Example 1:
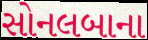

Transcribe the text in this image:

સોનલબાના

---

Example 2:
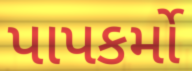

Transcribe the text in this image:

પાપકર્મો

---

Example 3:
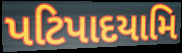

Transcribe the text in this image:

પટિપાદયામિ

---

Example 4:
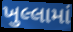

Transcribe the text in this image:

ખુલ્લામાં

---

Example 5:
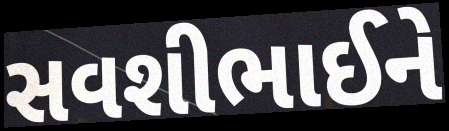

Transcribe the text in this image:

સવશીભાઈને